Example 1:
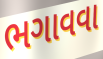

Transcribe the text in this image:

ભગાવવા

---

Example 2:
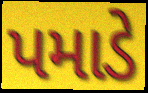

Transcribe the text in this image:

પમાડે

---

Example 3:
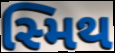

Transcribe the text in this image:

સ્મિથ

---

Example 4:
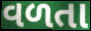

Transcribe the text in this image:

વળતા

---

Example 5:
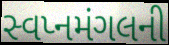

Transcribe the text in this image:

સ્વપ્નમંગલની